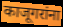
काजूगरांना